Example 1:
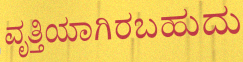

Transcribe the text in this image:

ವೃತ್ತಿಯಾಗಿರಬಹುದು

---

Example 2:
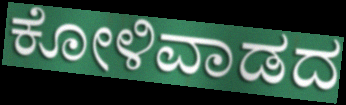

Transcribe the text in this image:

ಕೋಳಿವಾಡದ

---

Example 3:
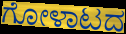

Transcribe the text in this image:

ಗೋಳಾಟದ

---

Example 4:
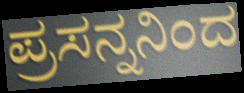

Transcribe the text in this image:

ಪ್ರಸನ್ನನಿಂದ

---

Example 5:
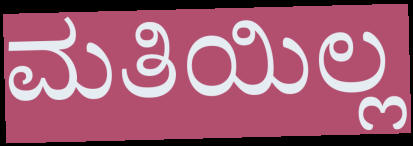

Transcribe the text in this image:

ಮತಿಯಿಲ್ಲ